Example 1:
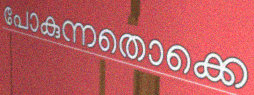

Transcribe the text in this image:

പോകുന്നതൊക്കെ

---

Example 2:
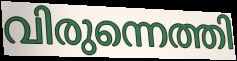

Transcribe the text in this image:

വിരുന്നെത്തി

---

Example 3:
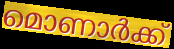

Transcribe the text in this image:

മൊണാർക്ക്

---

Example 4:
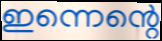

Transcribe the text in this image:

ഇന്നെന്റെ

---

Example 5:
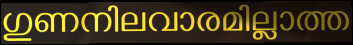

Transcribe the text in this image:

ഗുണനിലവാരമില്ലാത്ത